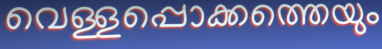
വെള്ളപ്പൊക്കത്തെയും